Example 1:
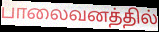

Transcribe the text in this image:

பாலைவனத்தில்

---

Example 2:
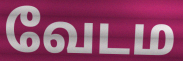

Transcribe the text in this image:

வேடம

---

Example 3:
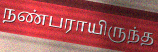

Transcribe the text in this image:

நண்பராயிருந்த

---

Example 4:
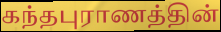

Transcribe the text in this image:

கந்தபுராணத்தின்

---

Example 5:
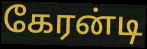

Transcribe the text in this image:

கேரன்டி